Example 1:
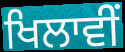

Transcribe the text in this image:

ਖਿਲਾਵੀਂ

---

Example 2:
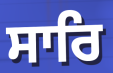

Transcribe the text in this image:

ਸਾਰਿ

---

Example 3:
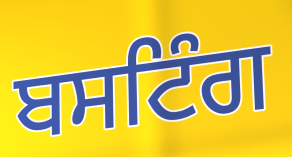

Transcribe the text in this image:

ਬਸਟਿੰਗ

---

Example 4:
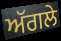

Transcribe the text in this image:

ਅੱਗਲੇ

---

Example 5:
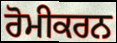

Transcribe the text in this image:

ਰੋਮੀਕਰਨ